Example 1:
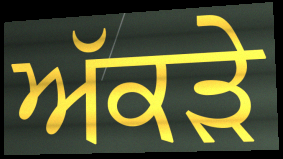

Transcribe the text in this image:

ਅੱਕੜੇ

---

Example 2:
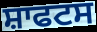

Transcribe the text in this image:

ਸ਼ਾਫਟਸ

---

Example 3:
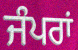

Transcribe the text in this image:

ਜੰਪਰਾਂ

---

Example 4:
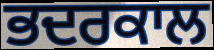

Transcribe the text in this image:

ਭਦਰਕਾਲ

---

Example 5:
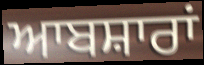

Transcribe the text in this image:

ਆਬਸ਼ਾਰਾਂ